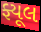
ફ્યૂલ